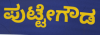
ಪುಟ್ಟೇಗೌಡ